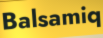
Balsamiq